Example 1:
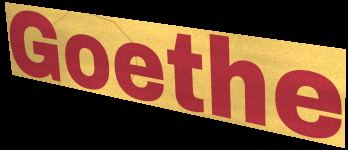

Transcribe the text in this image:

Goethe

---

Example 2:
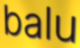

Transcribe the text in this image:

balu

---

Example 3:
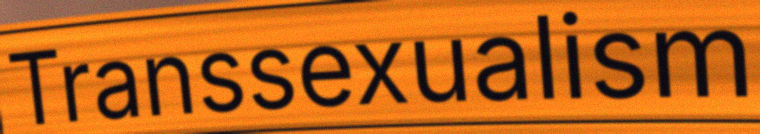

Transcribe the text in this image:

Transsexualism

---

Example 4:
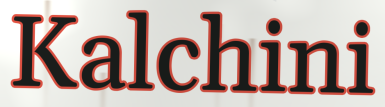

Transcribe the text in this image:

Kalchini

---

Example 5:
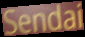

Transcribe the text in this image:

Sendai